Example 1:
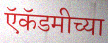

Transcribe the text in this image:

ऍकॅडमीच्या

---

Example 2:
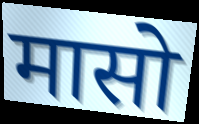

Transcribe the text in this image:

मासो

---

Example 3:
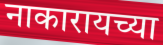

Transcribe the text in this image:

नाकारायच्या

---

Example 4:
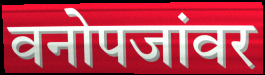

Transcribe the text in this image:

वनोपजांवर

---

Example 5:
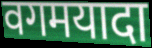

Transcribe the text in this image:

वगमयादा